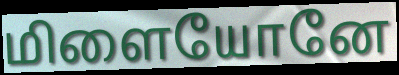
மிளையோனே